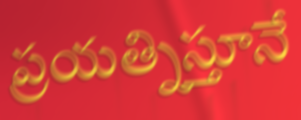
ప్రయత్నిస్తూనే